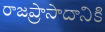
రాజప్రాసాదానికి